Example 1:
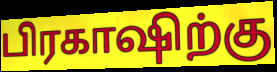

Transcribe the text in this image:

பிரகாஷிற்கு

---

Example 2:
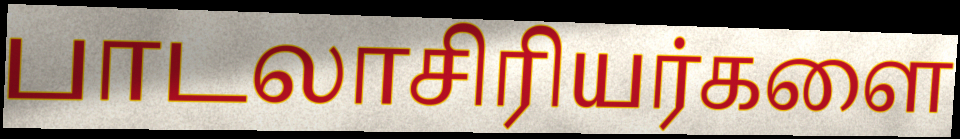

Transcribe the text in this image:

பாடலாசிரியர்களை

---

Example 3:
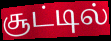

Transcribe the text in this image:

சூட்டில்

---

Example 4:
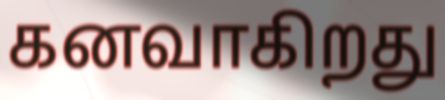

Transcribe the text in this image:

கனவாகிறது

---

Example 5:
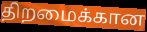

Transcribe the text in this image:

திறமைக்கான